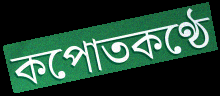
কপোতকণ্ঠে